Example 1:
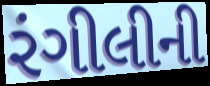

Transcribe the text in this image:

રંગીલીની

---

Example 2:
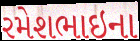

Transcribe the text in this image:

રમેશભાઇના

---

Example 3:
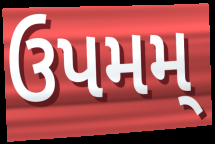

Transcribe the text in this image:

ઉપમમ્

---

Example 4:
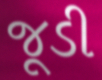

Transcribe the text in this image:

જૂડી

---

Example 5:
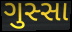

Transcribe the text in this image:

ગુસ્સા